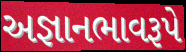
અજ્ઞાનભાવરૂપે